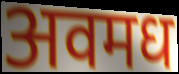
अवमध